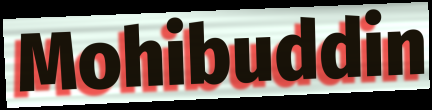
Mohibuddin